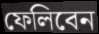
ফেলিবেন